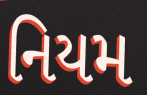
નિયમ